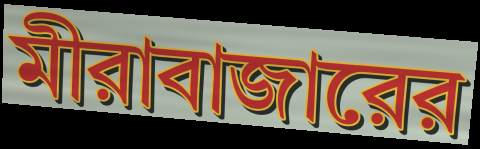
মীরাবাজারের